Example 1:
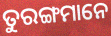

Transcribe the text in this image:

ତୁରଙ୍ଗମାନେ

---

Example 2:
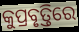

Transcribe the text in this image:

କୁପ୍ରବୃତ୍ତିରେ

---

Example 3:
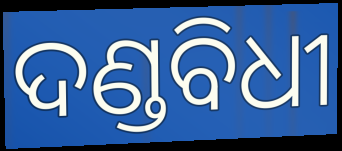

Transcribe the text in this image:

ଦଣ୍ଡବିଧୀ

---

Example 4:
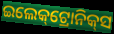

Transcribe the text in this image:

ଇଲେକ୍‌ଟ୍ରୋନିକ୍‌ସ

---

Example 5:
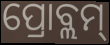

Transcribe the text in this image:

ପ୍ରୋବ୍ଲମ୍